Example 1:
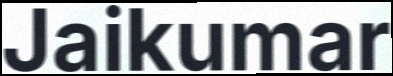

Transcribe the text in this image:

Jaikumar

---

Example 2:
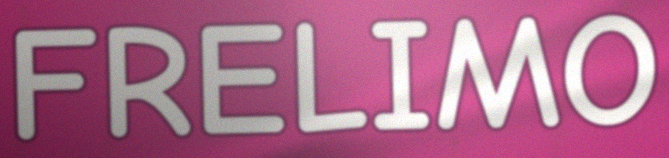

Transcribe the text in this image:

FRELIMO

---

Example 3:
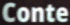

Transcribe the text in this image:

Conte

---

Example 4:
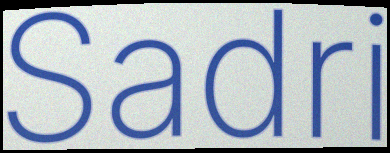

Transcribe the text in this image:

Sadri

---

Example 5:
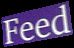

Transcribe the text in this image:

Feed